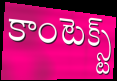
కాంటెక్స్ట్